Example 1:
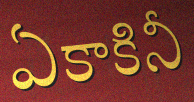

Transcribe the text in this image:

ఏకాకినీ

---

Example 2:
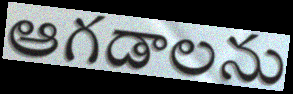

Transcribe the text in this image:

ఆగడాలను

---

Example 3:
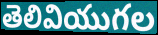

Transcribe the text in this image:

తెలివియుగల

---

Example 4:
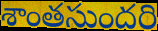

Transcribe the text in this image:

శాంతసుందరి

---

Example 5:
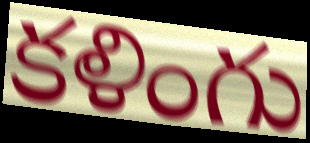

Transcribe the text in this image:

కళింగు